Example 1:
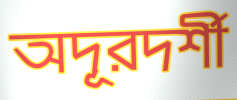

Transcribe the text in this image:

অদূরদর্শী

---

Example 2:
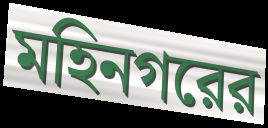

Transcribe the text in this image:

মহিনগরের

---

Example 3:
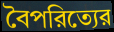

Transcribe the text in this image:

বৈপরিত্যের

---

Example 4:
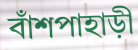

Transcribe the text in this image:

বাঁশপাহাড়ী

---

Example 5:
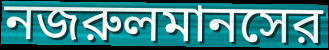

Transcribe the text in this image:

নজরুলমানসের